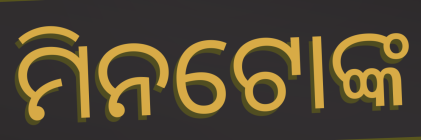
ମିନଟୋଙ୍କ